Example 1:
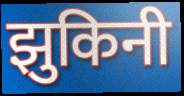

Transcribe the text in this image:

झुकिनी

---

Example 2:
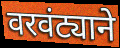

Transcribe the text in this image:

वरवंट्याने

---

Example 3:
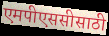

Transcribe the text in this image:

एमपीएससीसाठी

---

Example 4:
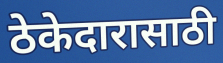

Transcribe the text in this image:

ठेकेदारासाठी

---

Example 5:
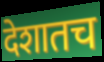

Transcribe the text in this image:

देशातच